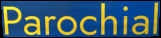
Parochial